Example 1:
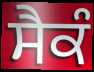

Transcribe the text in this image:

ਸੈਕੰ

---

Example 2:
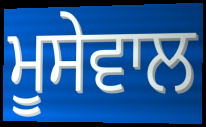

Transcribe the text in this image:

ਮੂਸੇਵਾਲ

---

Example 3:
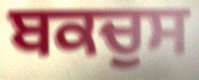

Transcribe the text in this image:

ਬਕਚੁਸ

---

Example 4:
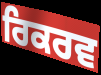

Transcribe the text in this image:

ਰਿਕਰਵ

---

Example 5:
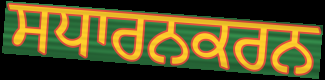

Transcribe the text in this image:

ਸਧਾਰਨਕਰਨ